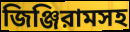
জিঞ্জিরামসহ